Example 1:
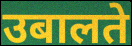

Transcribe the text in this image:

उबालते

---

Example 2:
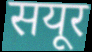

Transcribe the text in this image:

सयूर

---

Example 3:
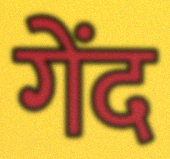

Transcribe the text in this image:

गेंद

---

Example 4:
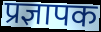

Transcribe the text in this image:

प्रज्ञापक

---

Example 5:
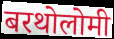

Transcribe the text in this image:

बरथोलोमी